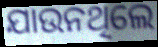
ଯାଉନଥିଲେ